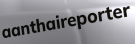
aanthaireporter